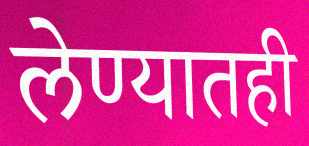
लेण्यातही